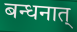
बन्धनात्